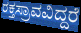
ರಕ್ತಸ್ರಾವವಿದ್ದರೆ